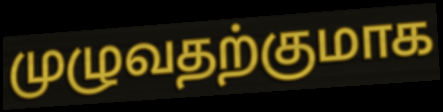
முழுவதற்குமாக